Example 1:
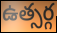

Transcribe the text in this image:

ఉత్సర్గ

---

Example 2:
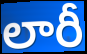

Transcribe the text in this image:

లారీ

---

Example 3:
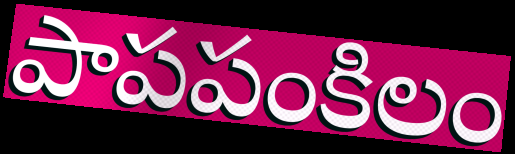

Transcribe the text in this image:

పాపపంకిలం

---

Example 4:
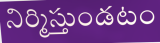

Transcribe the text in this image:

నిర్మిస్తుండటం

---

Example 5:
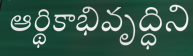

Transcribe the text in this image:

ఆర్థికాభివృద్ధిని